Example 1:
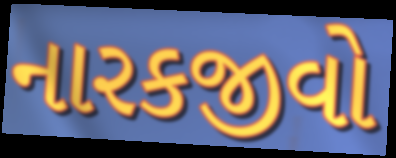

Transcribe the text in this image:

નારકજીવો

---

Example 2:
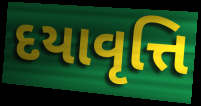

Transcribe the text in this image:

દયાવૃત્તિ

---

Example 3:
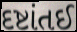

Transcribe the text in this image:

દષ્ટાંતઈ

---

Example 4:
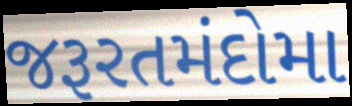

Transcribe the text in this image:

જરૂરતમંદોમા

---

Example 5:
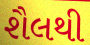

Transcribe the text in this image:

શૈલથી